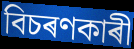
বিচৰণকাৰী